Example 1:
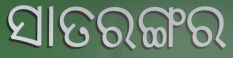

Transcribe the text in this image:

ସାତରଙ୍ଗର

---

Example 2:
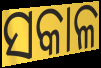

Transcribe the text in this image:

ସକାଳ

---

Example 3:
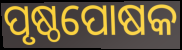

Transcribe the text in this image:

ପୃଷ୍ଠପୋଷକ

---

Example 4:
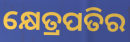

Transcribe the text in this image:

କ୍ଷେତ୍ରପତିର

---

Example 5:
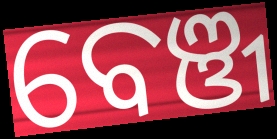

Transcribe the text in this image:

ବେଞ୍ଜ